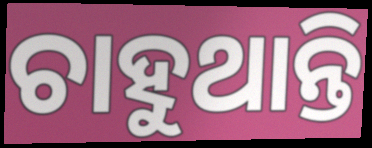
ଚାହୁଥାନ୍ତି